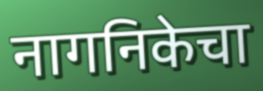
नागनिकेचा